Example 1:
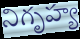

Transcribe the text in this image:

నిగృహ్య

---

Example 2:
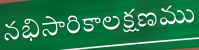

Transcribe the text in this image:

నభిసారికాలక్షణము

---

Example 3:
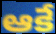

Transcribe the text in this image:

ఆకే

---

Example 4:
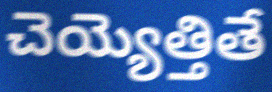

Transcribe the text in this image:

చెయ్యెత్తితే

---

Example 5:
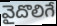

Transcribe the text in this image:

వైదొలిగే